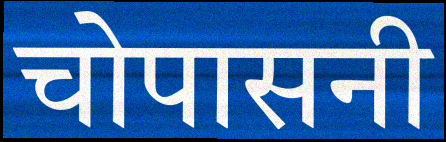
चोपासनी